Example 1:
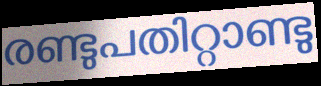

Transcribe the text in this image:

രണ്ടുപതിറ്റാണ്ടു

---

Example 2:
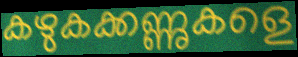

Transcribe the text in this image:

കഴുകക്കണ്ണുകളെ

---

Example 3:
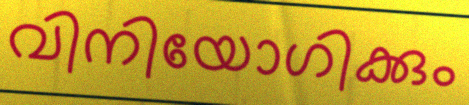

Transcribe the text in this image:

വിനിയോഗിക്കും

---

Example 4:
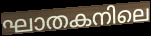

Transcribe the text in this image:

ഘാതകനിലെ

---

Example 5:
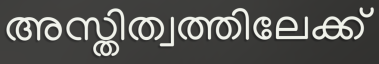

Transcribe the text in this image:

അസ്തിത്വത്തിലേക്ക്